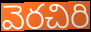
వెరచిరి